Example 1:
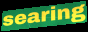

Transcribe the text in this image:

searing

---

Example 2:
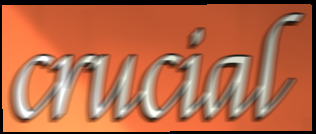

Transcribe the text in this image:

crucial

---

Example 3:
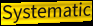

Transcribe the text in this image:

Systematic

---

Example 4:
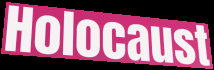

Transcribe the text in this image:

Holocaust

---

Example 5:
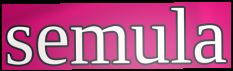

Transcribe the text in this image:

semula